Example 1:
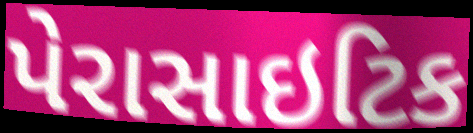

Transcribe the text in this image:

પેરાસાઇટિક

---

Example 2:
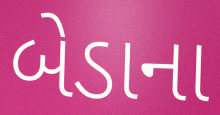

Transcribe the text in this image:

બેડાના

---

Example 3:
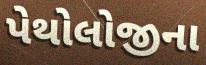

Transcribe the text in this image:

પેથોલોજીના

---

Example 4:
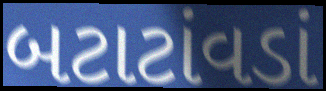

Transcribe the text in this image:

બટાટાંવડાં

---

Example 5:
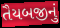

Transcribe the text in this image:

તૈયબજીનું